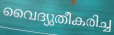
വൈദ്യുതീകരിച്ച